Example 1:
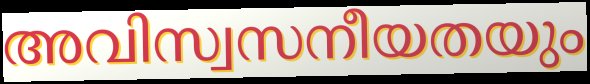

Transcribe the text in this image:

അവിസ്വസനീയതയും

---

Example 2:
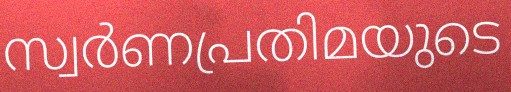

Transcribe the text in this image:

സ്വർണപ്രതിമയുടെ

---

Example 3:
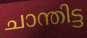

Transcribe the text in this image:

ചാന്തിട്ട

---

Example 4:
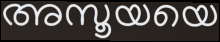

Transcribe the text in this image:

അസൂയയെ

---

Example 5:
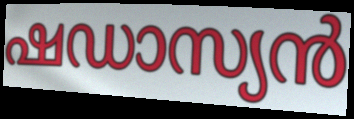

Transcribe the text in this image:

ഷഡാസ്യൻ